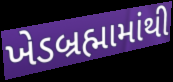
ખેડબ્રહ્મામાંથી